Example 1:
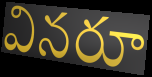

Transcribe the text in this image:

వినరూ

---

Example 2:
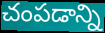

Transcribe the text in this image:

చంపడాన్ని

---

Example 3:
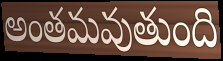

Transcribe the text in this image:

అంతమవుతుంది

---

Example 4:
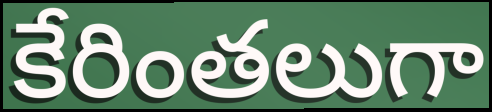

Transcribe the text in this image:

కేరింతలుగా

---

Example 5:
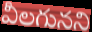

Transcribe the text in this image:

వీలగునని